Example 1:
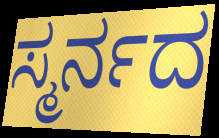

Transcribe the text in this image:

ಸ್ಮರ್ನದ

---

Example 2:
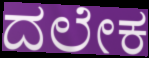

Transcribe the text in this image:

ದಲೇಕ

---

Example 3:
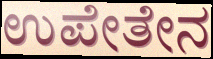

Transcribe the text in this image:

ಉಪೇತೇನ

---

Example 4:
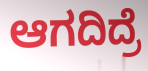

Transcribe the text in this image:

ಆಗದಿದ್ರೆ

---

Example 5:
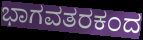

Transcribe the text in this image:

ಭಾಗವತರಕಂದ